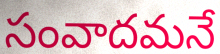
సంవాదమనే